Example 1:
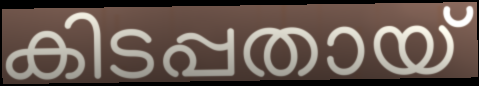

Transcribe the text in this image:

കിടപ്പതായ്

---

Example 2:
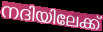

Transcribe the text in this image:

നദിയിലേക്ക്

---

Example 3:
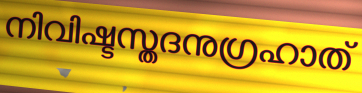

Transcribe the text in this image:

നിവിഷ്ടസ്തദനുഗ്രഹാത്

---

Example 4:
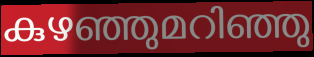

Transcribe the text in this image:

കുഴഞ്ഞുമറിഞ്ഞു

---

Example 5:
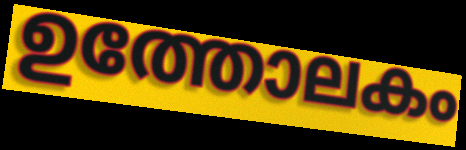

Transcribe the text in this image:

ഉത്തോലകം